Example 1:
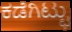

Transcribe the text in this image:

ಕಡೆಗಿಟ್ಟು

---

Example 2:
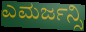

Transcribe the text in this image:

ಎಮರ್ಜನ್ಸಿ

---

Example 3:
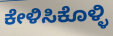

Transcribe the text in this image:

ಕೇಳಿಸಿಕೊಳ್ಳಿ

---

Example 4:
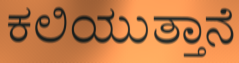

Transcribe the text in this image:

ಕಲಿಯುತ್ತಾನೆ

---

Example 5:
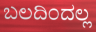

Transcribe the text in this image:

ಬಲದಿಂದಲ್ಲ